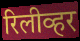
रिलीव्हर